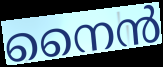
നൈൻ